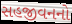
સહજીવનનો